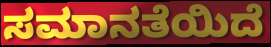
ಸಮಾನತೆಯಿದೆ